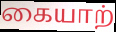
கையாற்